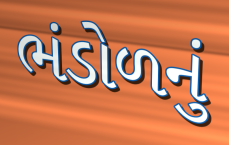
ભંડોળનું